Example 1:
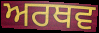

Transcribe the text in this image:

ਅਰਥਵ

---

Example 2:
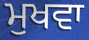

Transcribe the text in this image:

ਮੁਖਵਾ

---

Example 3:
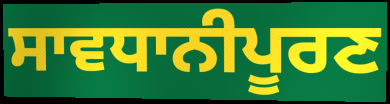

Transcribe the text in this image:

ਸਾਵਧਾਨੀਪੂਰਣ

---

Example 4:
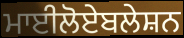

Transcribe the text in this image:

ਮਾਈਲੋਏਬਲੇਸ਼ਨ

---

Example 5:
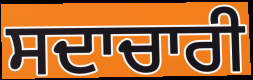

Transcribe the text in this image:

ਸਦਾਚਾਰੀ